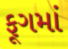
ફૂગમાં